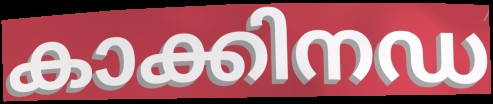
കാക്കിനഡ